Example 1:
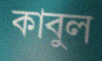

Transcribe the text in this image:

কাবুল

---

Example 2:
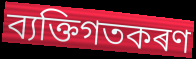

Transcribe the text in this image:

ব্যক্তিগতকৰণ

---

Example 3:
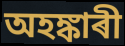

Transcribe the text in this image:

অহঙ্কাৰী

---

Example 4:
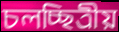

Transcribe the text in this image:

চলচ্ছিত্ৰীয়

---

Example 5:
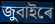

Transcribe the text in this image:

জুবাইৰে